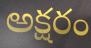
అక్షరం